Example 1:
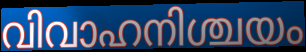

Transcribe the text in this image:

വിവാഹനിശ്ചയം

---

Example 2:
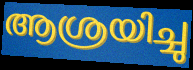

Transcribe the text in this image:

ആശ്രയിച്ചു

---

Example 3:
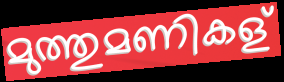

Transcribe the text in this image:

മുത്തുമണികള്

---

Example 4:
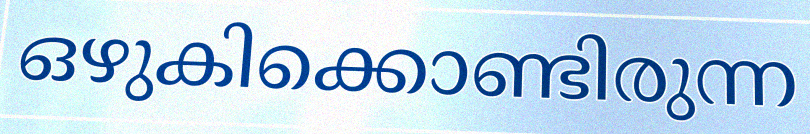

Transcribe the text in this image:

ഒഴുകിക്കൊണ്ടിരുന്ന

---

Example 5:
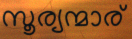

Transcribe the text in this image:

സൂര്യന്മാര്